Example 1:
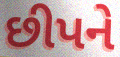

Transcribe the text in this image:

છીપને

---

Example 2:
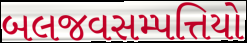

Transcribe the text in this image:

બલજવસમ્પત્તિયો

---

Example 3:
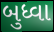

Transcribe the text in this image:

બુધ્વા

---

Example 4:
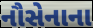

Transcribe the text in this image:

નૌસેનાના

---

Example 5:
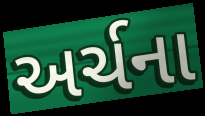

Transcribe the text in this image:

અર્ચના